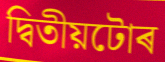
দ্বিতীয়টোৰ